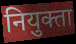
नियुक्ता